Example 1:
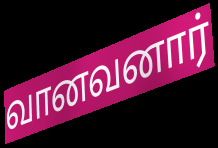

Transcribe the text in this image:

வானவனார்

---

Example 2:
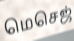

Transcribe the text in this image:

மெசெஜ்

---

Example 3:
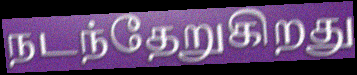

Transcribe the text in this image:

நடந்தேறுகிறது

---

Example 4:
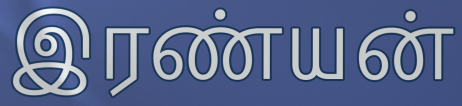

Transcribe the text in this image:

இரண்யன்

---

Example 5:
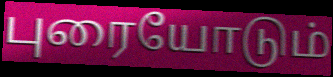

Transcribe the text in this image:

புரையோடும்